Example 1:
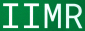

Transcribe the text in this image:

IIMR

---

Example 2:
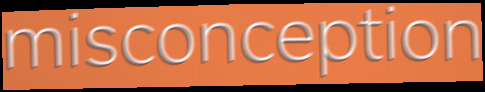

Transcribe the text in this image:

misconception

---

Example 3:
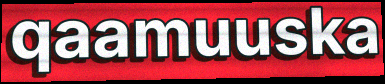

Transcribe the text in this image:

qaamuuska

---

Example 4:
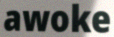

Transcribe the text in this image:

awoke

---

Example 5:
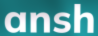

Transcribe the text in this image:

ansh